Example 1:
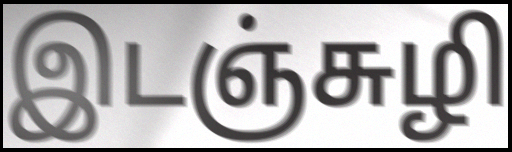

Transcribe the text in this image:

இடஞ்சுழி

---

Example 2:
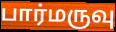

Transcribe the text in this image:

பார்மருவு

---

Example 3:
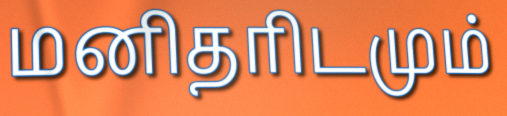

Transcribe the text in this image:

மனிதரிடமும்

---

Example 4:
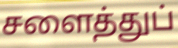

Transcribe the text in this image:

சளைத்துப்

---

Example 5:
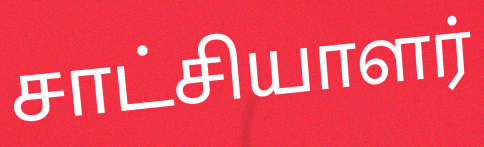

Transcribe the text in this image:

சாட்சியாளர்